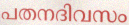
പതനദിവസം